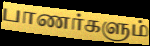
பாணர்களும்